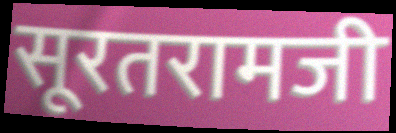
सूरतरामजी